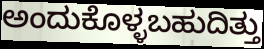
ಅಂದುಕೊಳ್ಳಬಹುದಿತ್ತು